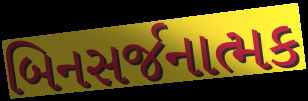
બિનસર્જનાત્મક